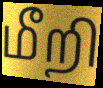
மீறி